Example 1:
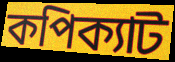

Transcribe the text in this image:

কপিক্যাট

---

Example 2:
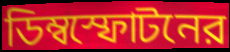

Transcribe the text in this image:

ডিম্বস্ফোটনের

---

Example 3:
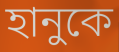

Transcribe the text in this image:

হানুকে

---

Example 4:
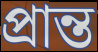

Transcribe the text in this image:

প্রান্ত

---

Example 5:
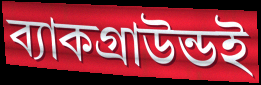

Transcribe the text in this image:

ব্যাকগ্রাউন্ডই